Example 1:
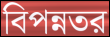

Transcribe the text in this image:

বিপন্নতর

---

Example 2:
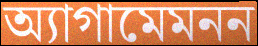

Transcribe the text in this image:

অ্যাগামেমনন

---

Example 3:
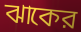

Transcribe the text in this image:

ঝাকের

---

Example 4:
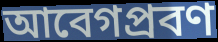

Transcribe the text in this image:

আবেগপ্রবণ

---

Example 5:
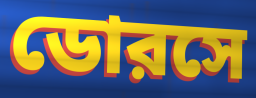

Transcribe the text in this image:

ডোরসে